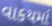
વાકયમાં